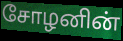
சோழனின்